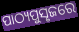
ପାଠ୍ୟପୁସୃଜରେ